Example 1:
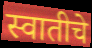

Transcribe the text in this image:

स्वातीचे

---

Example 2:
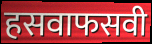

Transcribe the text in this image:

हसवाफसवी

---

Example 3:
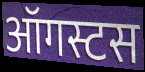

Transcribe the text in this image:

ऑगस्टस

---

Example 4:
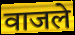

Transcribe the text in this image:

वाजले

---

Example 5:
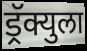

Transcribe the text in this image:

ड्रॅक्युला